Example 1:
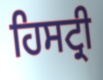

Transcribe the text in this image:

ਹਿਸਟ੍ਰੀ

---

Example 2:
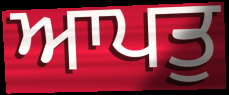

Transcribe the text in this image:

ਆਪਤੁ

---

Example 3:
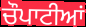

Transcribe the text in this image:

ਚੌਪਾਟੀਆਂ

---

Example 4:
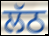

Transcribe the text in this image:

ਲੱਠ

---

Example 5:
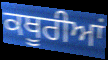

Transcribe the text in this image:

ਕਥੂਰੀਆਂ